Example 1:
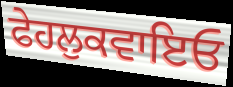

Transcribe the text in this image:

ਫੇਹਲੁਕਵਾਇਓ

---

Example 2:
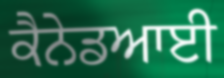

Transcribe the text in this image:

ਕੈਨੇਡਆਈ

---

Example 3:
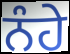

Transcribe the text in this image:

ਨੰਹੇ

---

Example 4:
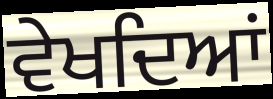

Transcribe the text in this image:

ਵੇਖਦਿਆਂ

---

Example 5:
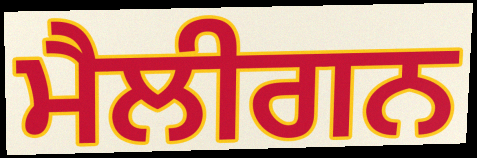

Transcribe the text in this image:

ਮੈਲੀਗਨ